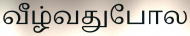
வீழ்வதுபோல